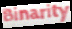
Binarity